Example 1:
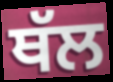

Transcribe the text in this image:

ਥੱਲ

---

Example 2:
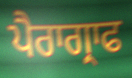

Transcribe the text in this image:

ਪੈਰਾਗ੍ਰਾਫ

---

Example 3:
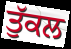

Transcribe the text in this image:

ਤੁੱਕਲ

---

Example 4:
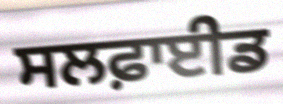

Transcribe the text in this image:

ਸਲਫ਼ਾਈਡ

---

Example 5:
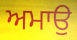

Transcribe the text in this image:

ਅਮਾਉ